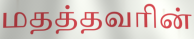
மதத்தவரின்